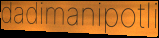
dadimanipotli